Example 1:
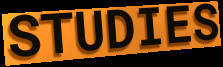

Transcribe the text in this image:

STUDIES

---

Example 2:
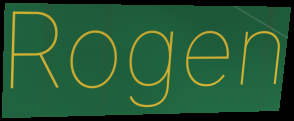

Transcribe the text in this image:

Rogen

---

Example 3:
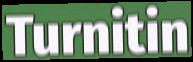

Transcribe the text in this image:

Turnitin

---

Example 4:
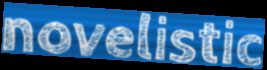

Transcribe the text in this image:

novelistic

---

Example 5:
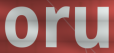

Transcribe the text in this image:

oru